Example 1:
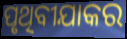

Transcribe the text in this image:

ପୃଥିବୀଯାକର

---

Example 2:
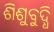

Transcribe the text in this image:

ଶିଶୁବୁଦ୍ଧି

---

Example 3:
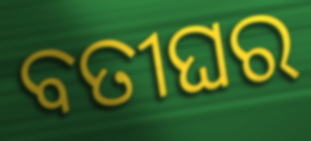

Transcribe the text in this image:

ବତୀଘର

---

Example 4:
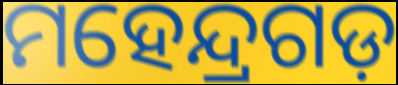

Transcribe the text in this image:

ମହେନ୍ଦ୍ରଗଡ଼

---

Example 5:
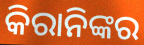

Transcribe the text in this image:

କିରାନିଙ୍କର